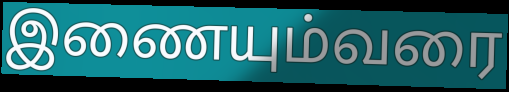
இணையும்வரை